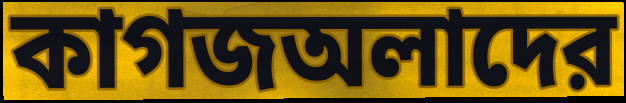
কাগজঅলাদের